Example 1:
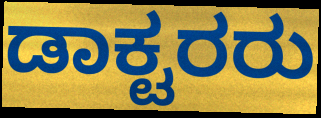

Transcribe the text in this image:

ಡಾಕ್ಟರರು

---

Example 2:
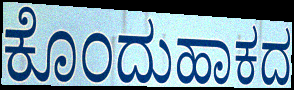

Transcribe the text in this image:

ಕೊಂದುಹಾಕದ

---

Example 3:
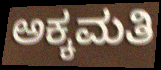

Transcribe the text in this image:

ಅಕ್ಕಮತಿ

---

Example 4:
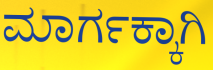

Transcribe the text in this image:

ಮಾರ್ಗಕ್ಕಾಗಿ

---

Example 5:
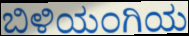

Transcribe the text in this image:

ಬಿಳಿಯಂಗಿಯ